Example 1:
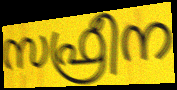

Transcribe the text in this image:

സഫ്രീന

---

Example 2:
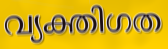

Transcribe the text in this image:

വ്യക്തിഗത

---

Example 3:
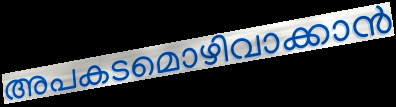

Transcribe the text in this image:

അപകടമൊഴിവാക്കാൻ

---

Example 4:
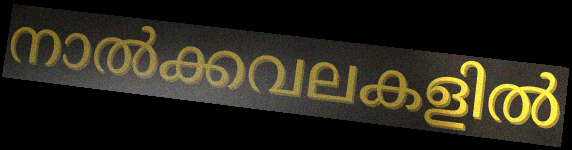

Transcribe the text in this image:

നാൽക്കവലകളിൽ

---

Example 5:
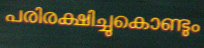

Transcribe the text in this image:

പരിരക്ഷിച്ചുകൊണ്ടും